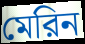
মেরিন